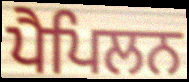
ਪੈਪਿਲਨ